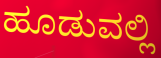
ಹೂಡುವಲ್ಲಿ